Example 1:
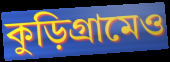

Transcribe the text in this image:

কুড়িগ্রামেও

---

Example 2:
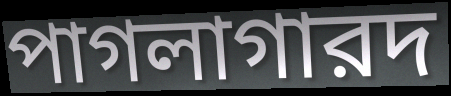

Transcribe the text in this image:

পাগলাগারদ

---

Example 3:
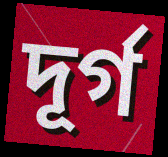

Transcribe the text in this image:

দূর্গ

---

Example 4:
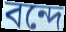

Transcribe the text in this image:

বন্দে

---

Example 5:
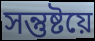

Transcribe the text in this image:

সন্তুষ্টয়ে